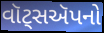
વૉટ્સઍપનો